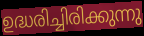
ഉദ്ധരിച്ചിരിക്കുന്നു